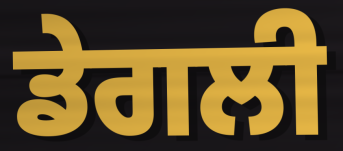
ਡੇਗਲੀ